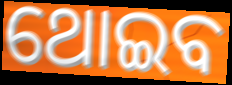
ଥୋଇବ